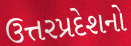
ઉત્તરપ્રદેશનો